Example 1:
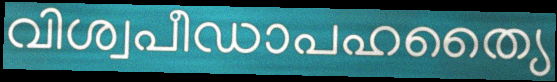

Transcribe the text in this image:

വിശ്വപീഡാപഹത്യൈ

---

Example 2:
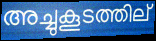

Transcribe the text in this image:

അച്ചുകൂടത്തില്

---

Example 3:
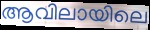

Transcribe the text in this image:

ആവിലായിലെ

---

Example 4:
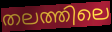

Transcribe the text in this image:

തലത്തിലെ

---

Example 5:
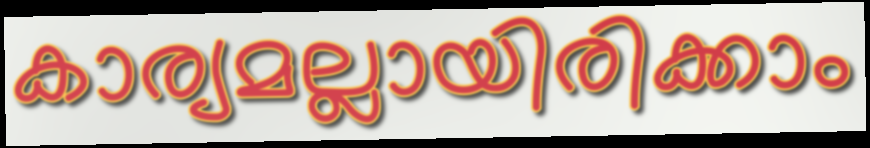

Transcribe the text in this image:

കാര്യമല്ലായിരിക്കാം